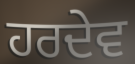
ਹਰਦੇਵ